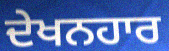
ਦੇਖਨਹਾਰ